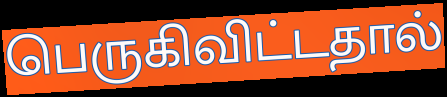
பெருகிவிட்டதால்